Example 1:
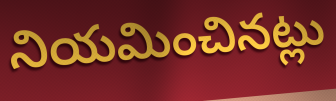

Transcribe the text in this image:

నియమించినట్లు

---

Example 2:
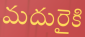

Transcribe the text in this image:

మదురైకి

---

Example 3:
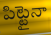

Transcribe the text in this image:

పిట్టైనా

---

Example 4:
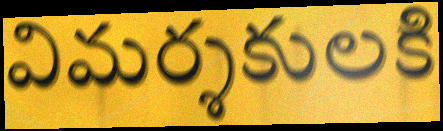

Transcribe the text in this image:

విమర్శకులకి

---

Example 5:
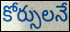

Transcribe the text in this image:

కోర్సులనే